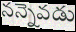
నన్నెవడు